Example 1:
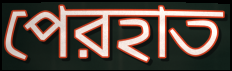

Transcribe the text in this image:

পেরহাত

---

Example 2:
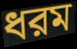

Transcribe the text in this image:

ধরম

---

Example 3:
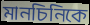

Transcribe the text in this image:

মানচিনিকে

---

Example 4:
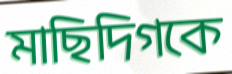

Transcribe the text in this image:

মাছিদিগকে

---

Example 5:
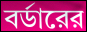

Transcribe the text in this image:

বর্ডারের